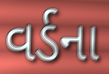
વર્ડના